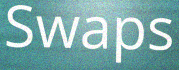
Swaps